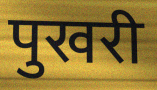
पुखरी